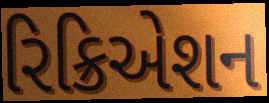
રિક્રિએશન